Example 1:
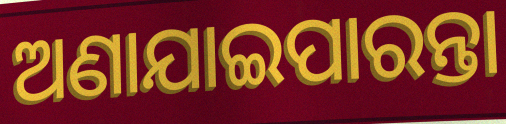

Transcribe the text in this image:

ଅଣାଯାଇପାରନ୍ତା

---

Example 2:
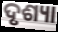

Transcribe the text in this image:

ଦୃଶ୍ୟା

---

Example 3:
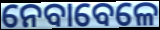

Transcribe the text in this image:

ନେବାବେଳେ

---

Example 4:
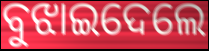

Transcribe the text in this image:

ବୁଝାଇଦେଲେ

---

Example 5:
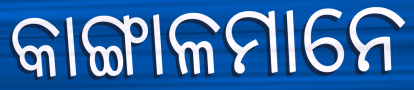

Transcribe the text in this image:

କାଙ୍ଗାଳମାନେ